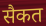
सैकत